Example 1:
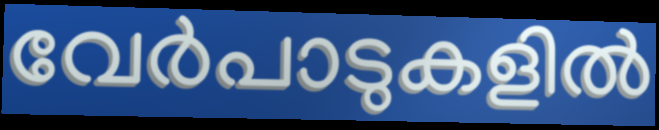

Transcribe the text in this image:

വേർപാടുകളിൽ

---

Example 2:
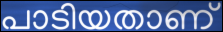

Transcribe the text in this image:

പാടിയതാണ്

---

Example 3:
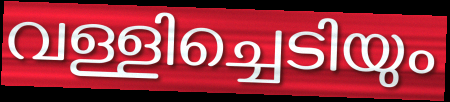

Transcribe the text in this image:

വള്ളിച്ചെടിയും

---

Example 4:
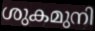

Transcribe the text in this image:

ശുകമുനി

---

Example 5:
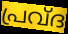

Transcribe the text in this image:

പ്രവ്ദ